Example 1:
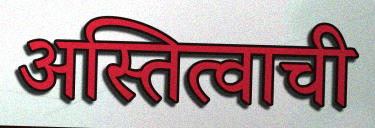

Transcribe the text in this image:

अस्तित्वाची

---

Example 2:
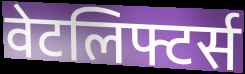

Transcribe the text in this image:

वेटलिफ्टर्स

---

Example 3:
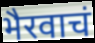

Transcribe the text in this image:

भैरवाचं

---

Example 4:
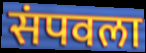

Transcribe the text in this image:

संपवला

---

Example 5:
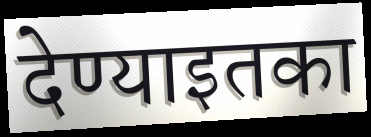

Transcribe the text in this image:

देण्याइतका